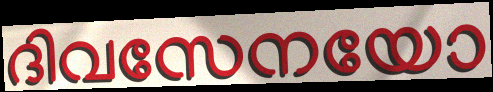
ദിവസേനയോ